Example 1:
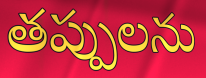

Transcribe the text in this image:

తప్పులను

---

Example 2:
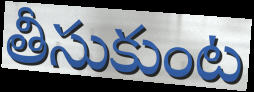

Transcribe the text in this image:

తీసుకుంట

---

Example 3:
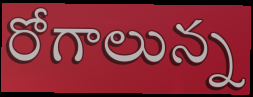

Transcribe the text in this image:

రోగాలున్న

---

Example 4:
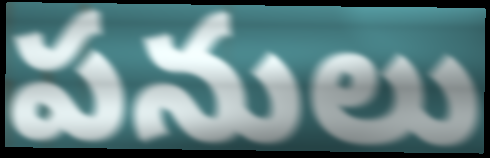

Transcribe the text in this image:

పనులు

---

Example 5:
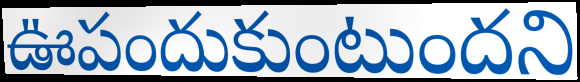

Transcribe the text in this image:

ఊపందుకుంటుందని